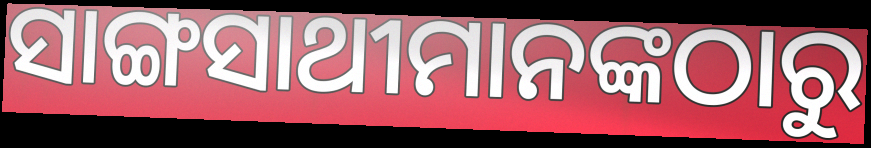
ସାଙ୍ଗସାଥୀମାନଙ୍କଠାରୁ